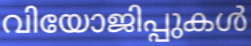
വിയോജിപ്പുകൾ